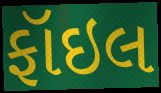
ફૉઇલ